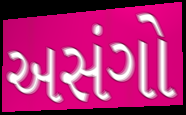
અસંગો